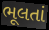
ભૂલતાં